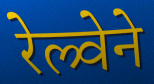
रेल्वेने